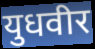
युधवीर